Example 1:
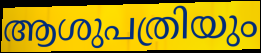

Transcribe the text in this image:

ആശുപത്രിയും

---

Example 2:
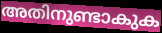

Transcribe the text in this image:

അതിനുണ്ടാകുക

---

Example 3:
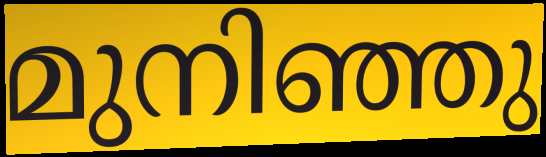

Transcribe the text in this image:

മുനിഞ്ഞു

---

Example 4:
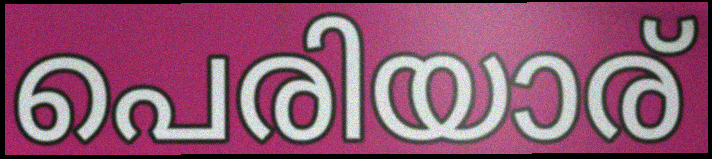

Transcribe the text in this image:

പെരിയാര്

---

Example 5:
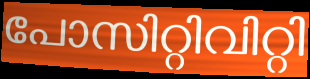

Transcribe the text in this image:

പോസിറ്റിവിറ്റി